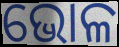
ଭୋଳ